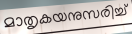
മാതൃകയനുസരിച്ച്